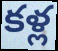
కళ్ల